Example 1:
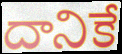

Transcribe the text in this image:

దానికే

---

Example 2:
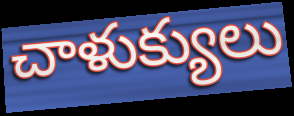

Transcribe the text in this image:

చాళుక్యులు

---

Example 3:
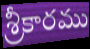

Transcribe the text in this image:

శ్రీకారము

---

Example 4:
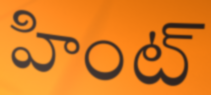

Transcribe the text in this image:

హింట్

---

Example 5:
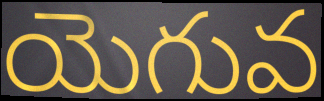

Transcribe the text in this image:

యెగువ